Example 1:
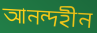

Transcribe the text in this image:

আনন্দহীন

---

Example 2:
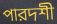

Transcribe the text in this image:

পারদশী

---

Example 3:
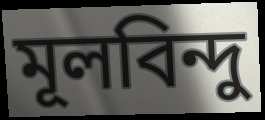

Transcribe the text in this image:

মূলবিন্দু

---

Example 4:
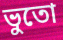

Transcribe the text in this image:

ভুতো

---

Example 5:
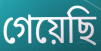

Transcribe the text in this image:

গেয়েছি